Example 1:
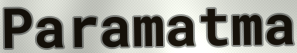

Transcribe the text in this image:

Paramatma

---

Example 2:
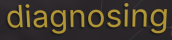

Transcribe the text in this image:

diagnosing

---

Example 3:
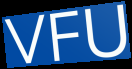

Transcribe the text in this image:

VFU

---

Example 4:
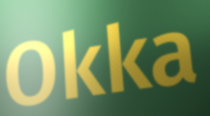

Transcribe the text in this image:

Okka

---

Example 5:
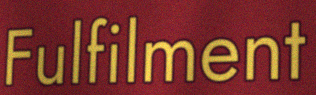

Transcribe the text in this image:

Fulfilment